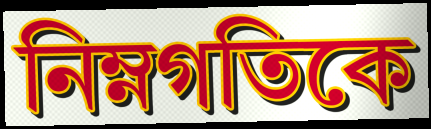
নিম্নগতিকে